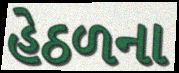
હેઠળના